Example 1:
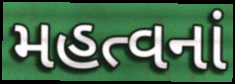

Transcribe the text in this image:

મહત્વનાં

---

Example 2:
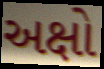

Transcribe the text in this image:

અક્ષો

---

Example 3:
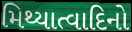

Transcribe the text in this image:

મિથ્યાત્વાદિનો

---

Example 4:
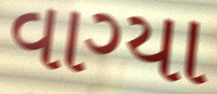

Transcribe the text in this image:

વાગ્યા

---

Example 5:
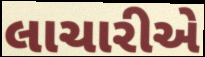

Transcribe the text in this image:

લાચારીએ